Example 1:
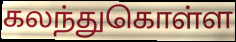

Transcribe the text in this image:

கலந்துகொள்ள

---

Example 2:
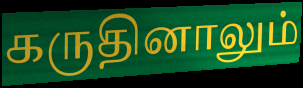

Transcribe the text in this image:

கருதினாலும்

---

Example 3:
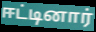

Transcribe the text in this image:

ஈட்டினார்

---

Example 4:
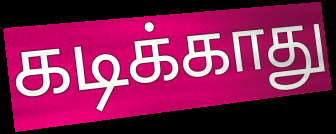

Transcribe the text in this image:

கடிக்காது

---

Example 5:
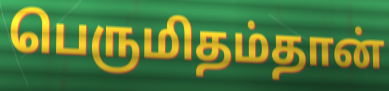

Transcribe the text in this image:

பெருமிதம்தான்